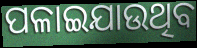
ପଳାଇଯାଉଥିବ